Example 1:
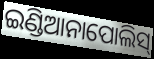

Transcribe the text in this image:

ଇଣ୍ଡିଆନାପୋଲିସ୍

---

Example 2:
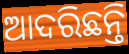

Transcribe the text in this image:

ଆଦରିଛନ୍ତି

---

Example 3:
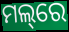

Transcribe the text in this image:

ମଲ୍‌ରେ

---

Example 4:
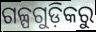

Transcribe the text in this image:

ଗଳ୍ପଗୁଡ଼ିକରୁ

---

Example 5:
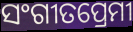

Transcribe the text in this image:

ସଂଗୀତପ୍ରେମୀ